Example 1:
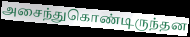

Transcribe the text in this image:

அசைந்துகொண்டிருந்தன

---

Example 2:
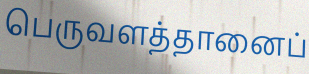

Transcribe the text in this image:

பெருவளத்தானைப்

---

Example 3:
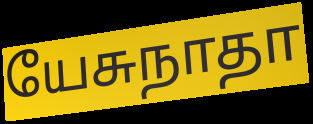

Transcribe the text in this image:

யேசுநாதா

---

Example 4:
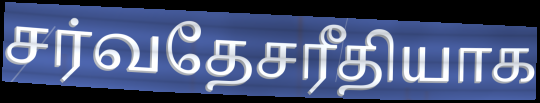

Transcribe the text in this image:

சர்வதேசரீதியாக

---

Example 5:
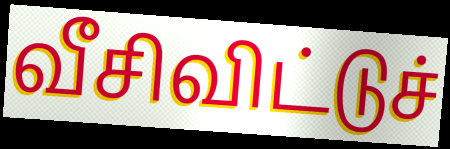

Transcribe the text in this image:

வீசிவிட்டுச்